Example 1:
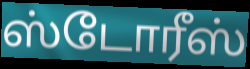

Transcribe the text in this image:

ஸ்டோரீஸ்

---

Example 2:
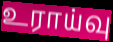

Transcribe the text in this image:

உராய்வு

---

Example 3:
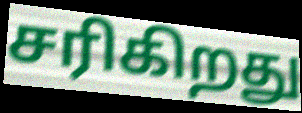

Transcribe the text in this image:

சரிகிறது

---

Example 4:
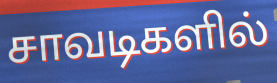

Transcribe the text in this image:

சாவடிகளில்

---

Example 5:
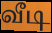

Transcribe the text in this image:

வீடி